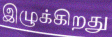
இழுக்கிறது